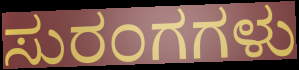
ಸುರಂಗಗಳು